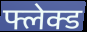
फ्लेक्ड